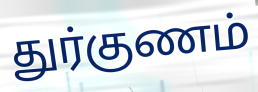
துர்குணம்